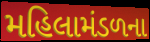
મહિલામંડળના